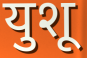
युशू